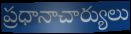
ప్రధానాచార్యులు